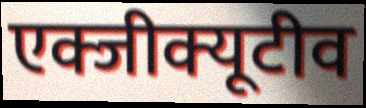
एक्जीक्यूटीव